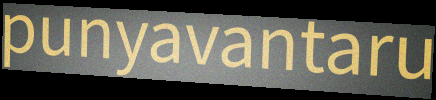
punyavantaru